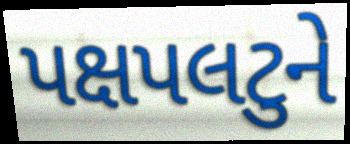
પક્ષપલટુને